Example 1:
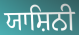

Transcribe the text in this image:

ਯਾਸ਼ਿਨੀ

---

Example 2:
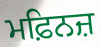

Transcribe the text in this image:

ਮਫ਼ਿਨਜ਼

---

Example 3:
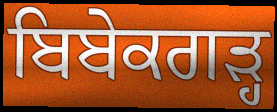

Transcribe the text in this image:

ਬਿਬੇਕਗੜ੍ਹ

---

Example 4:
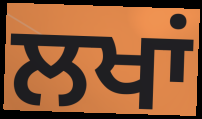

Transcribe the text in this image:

ਲਖਾਂ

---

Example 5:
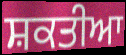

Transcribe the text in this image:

ਸ਼ਕਤੀਆ